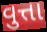
વુત્તા